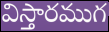
విస్తారముగ